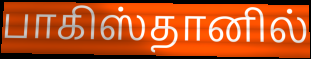
பாகிஸ்தானில்